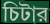
চিটার